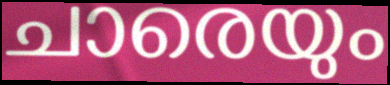
ചാരെയും